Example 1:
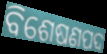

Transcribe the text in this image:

ବିଶେଷଣପଦ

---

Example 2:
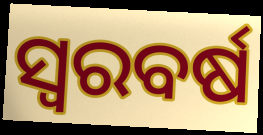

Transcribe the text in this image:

ସ୍ଵରବର୍ଷ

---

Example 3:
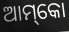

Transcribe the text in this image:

ଆମ୍‌କୋ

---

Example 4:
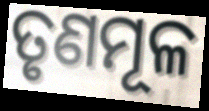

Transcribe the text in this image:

ତୃଣମୂଳ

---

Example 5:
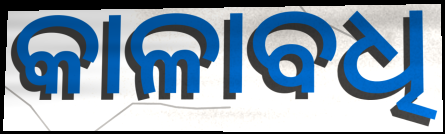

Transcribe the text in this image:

କାଳାବଧି